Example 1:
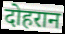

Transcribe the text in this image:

दोहरान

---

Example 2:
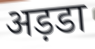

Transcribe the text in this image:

अड़डा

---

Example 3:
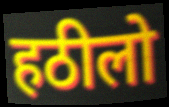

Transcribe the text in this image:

हठीलो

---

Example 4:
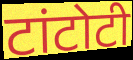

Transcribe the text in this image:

टांटोटी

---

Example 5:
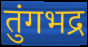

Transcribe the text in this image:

तुंगभद्र